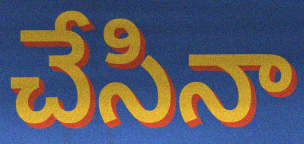
చేసినా